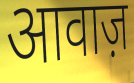
आवाज़